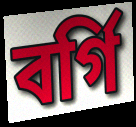
বর্গি